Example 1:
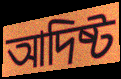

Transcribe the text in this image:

আদিষ্ট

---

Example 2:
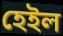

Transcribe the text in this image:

হেইল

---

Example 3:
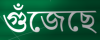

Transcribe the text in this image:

গুঁজেছে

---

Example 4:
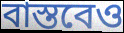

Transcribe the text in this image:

বাস্তবেও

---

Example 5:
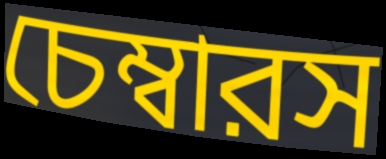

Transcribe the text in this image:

চেম্বারস